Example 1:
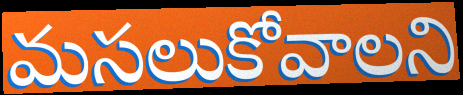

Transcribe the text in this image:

మసలుకోవాలని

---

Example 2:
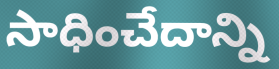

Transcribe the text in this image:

సాధించేదాన్ని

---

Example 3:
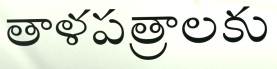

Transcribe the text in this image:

తాళపత్రాలకు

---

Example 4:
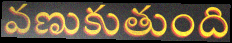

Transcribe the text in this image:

వణుకుతుంది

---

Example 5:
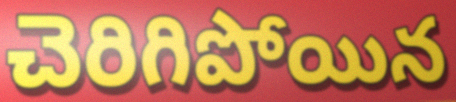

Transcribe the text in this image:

చెరిగిపోయిన